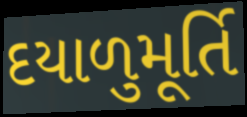
દયાળુમૂર્તિ